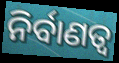
ନିର୍ବାଣତ୍ୱ